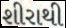
શીરાથી